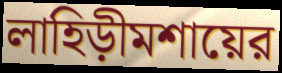
লাহিড়ীমশায়ের